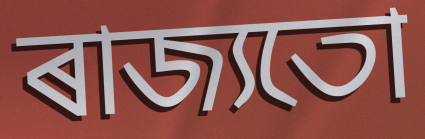
ৰাজ্যতো